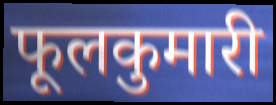
फूलकुमारी